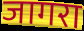
जागरा